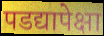
पडद्यापेक्षा